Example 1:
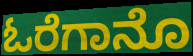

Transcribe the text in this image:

ಓರೆಗಾನೊ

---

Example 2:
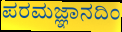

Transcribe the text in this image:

ಪರಮಜ್ಞಾನದಿಂ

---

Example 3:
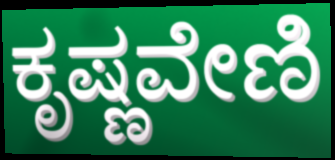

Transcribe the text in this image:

ಕೃಷ್ಣವೇಣಿ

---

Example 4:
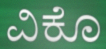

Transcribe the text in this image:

ವಿಕೊ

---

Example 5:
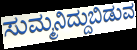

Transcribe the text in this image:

ಸುಮ್ಮನಿದ್ದುಬಿಡುವ